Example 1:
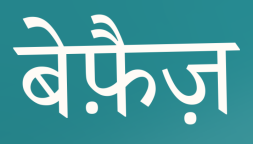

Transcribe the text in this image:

बेफ़ैज़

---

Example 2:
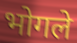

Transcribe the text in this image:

भोगले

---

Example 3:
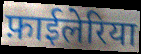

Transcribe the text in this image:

फ़ाईलेरिया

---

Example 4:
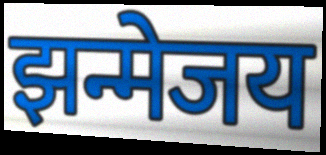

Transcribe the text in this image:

झन्मेजय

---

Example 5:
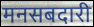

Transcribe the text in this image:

मनसबदारी